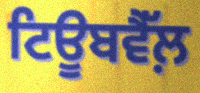
ਟਿਊਬਵੈੱਲ਼